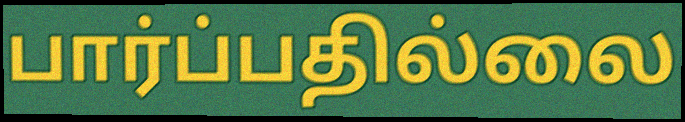
பார்ப்பதில்லை